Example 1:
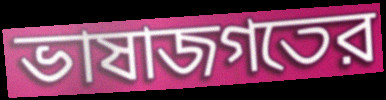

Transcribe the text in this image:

ভাষাজগতের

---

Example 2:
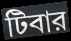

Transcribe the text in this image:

টিবার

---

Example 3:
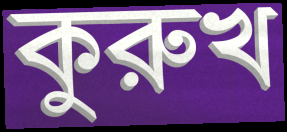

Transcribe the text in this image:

কুরুখ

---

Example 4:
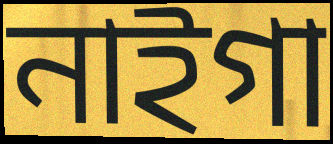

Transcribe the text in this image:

নাইগা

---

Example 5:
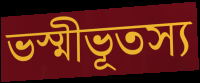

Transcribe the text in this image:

ভস্মীভূতস্য